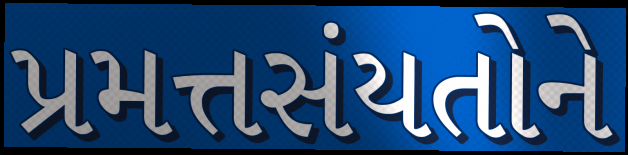
પ્રમત્તસંયતોને